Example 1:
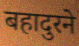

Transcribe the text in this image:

बहादुरने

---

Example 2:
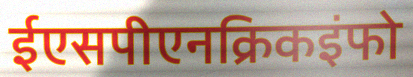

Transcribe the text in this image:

ईएसपीएनक्रिकइंफो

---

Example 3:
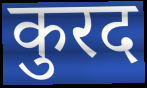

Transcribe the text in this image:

कुरद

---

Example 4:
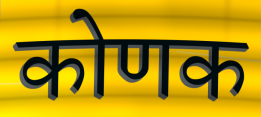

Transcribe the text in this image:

कोणक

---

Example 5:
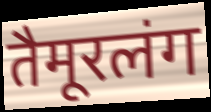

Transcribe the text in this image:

तैमूरलंग